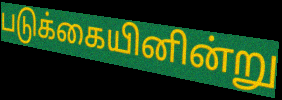
படுக்கையினின்று